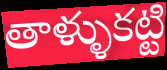
తాళ్ళుకట్టి